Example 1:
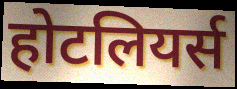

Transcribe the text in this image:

होटलियर्स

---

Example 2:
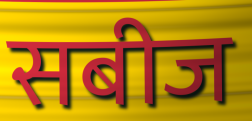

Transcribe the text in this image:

सबीज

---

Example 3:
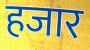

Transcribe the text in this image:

हजार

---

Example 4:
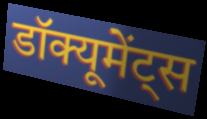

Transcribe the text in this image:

डॉक्यूमेंट्स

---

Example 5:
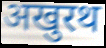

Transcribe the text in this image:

अखुरथ